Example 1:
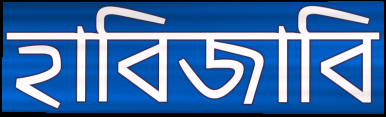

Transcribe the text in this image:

হাবিজাবি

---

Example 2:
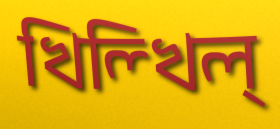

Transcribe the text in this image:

খিল্খিল্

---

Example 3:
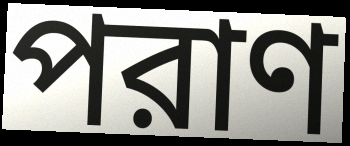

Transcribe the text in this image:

পরাণ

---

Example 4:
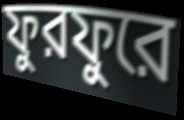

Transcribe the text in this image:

ফুরফুরে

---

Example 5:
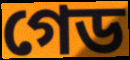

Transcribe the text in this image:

গেড